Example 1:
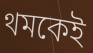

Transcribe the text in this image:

থমকেই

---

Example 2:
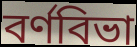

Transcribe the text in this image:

বর্ণবিভা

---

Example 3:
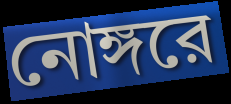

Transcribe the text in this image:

নোঙ্গরে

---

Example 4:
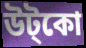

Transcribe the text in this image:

উট্কো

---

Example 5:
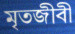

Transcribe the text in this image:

মৃতজীবী